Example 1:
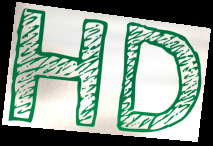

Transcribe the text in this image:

HD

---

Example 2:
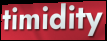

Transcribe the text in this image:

timidity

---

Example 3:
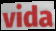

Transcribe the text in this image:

vida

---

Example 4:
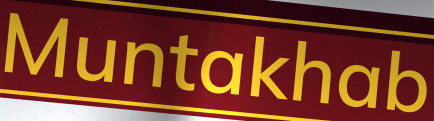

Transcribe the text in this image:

Muntakhab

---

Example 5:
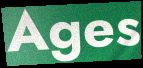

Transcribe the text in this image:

Ages